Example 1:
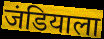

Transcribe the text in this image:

जंडियाला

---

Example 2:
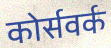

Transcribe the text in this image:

कोर्सवर्क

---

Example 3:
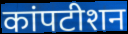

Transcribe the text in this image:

कांपटीशन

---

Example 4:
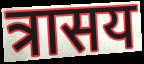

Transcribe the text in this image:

त्रासय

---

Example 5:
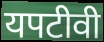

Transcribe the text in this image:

यपटीवी